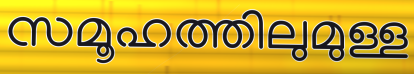
സമൂഹത്തിലുമുള്ള